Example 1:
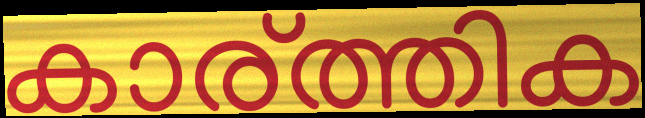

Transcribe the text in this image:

കാര്ത്തിക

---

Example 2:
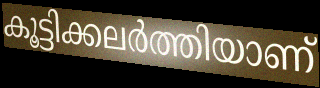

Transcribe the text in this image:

കൂട്ടിക്കലർത്തിയാണ്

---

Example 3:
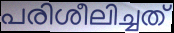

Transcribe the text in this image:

പരിശീലിച്ചത്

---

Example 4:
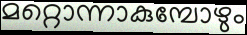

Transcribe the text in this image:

മറ്റൊന്നാകുമ്പോഴും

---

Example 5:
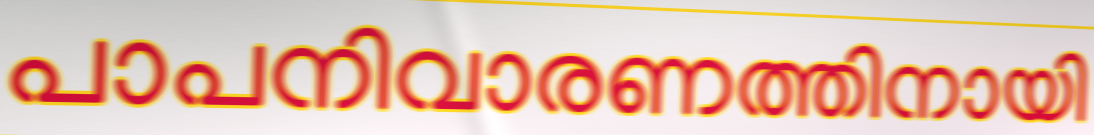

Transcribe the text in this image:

പാപനിവാരണത്തിനായി